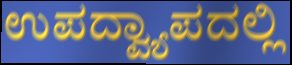
ಉಪದ್ವ್ಯಾಪದಲ್ಲಿ